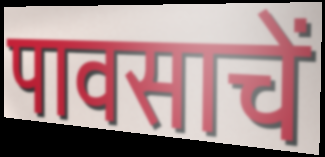
पावसाचें